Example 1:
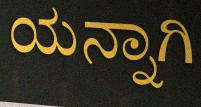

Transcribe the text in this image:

ಯನ್ನಾಗಿ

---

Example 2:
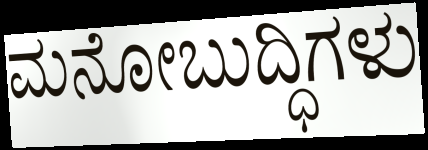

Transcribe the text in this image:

ಮನೋಬುದ್ಧಿಗಳು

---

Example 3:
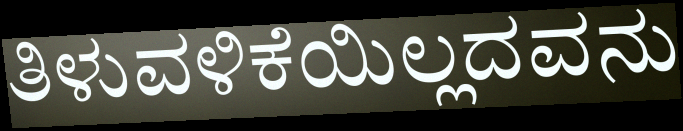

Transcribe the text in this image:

ತಿಳುವಳಿಕೆಯಿಲ್ಲದವನು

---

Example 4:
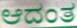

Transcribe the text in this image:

ಆದಂತ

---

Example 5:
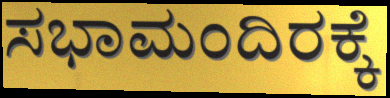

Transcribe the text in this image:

ಸಭಾಮಂದಿರಕ್ಕೆ